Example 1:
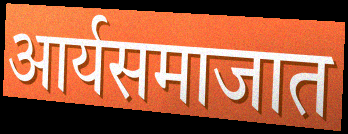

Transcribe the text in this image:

आर्यसमाजात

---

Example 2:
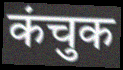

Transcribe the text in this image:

कंचुक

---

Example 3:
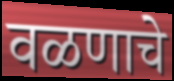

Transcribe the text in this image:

वळणाचे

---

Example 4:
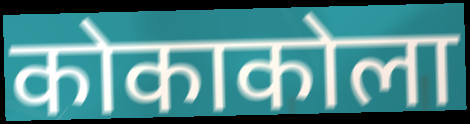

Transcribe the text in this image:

कोकाकोला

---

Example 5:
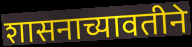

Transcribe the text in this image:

शासनाच्यावतीने